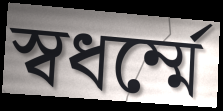
স্বধর্ম্মে